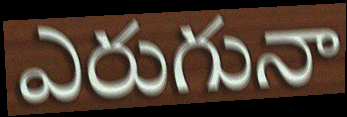
ఎరుగునా